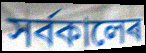
সৰ্বকালেৰ